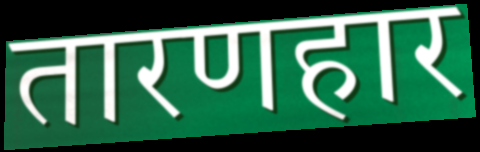
तारणहार